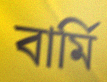
বার্মি